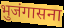
भुजंगासना